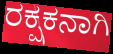
ರಕ್ಷಕನಾಗಿ